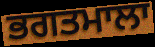
ਭਗਤਮਾਲਾ